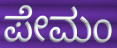
ಪೇಮಂ